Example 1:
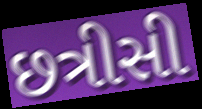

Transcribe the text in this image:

છત્રીસી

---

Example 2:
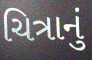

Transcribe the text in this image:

ચિત્રાનું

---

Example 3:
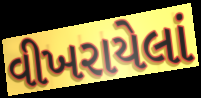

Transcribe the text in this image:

વીખરાયેલાં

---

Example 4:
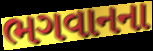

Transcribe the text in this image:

ભગવાનના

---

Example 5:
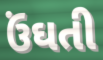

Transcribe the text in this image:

ઉંઘતી